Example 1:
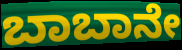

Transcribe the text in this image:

ಬಾಬಾನೇ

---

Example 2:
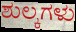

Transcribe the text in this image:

ಶುಲ್ಕಗಳು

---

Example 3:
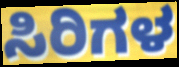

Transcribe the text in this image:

ಸಿರಿಗಳ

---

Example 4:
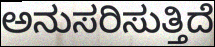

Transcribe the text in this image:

ಅನುಸರಿಸುತ್ತಿದೆ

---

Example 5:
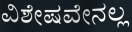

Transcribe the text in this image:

ವಿಶೇಷವೇನಲ್ಲ